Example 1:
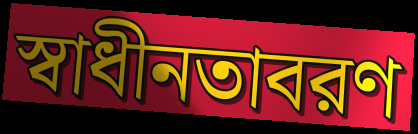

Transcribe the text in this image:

স্বাধীনতাবরণ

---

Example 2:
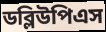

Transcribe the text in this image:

ডব্লিউপিএস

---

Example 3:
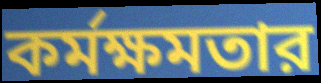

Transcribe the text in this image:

কর্মক্ষমতার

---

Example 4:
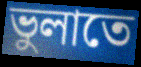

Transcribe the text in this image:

ভুলাতে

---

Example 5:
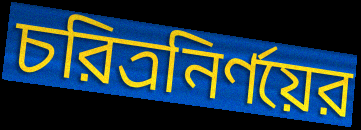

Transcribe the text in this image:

চরিত্রনির্ণয়ের